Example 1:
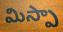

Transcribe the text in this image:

మిస్పా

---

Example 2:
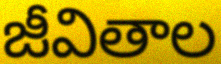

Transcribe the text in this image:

జీవితాల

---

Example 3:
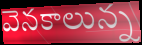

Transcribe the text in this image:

వెనకాలున్న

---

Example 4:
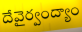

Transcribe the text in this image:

దేవైర్వంద్యాం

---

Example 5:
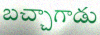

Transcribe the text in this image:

బచ్చాగాడు